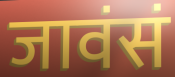
जावंसं